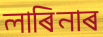
লাৰিনাৰ